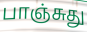
பாஞ்சுது